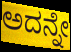
ಅದನ್ನೇ